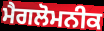
ਮੈਗਲੋਮਨੀਕ